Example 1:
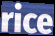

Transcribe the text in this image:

rice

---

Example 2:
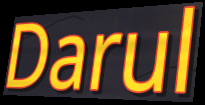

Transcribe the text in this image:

Darul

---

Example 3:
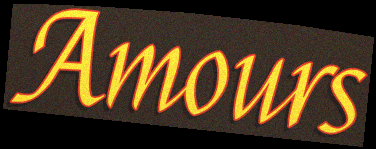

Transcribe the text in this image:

Amours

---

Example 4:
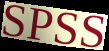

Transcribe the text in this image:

SPSS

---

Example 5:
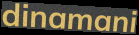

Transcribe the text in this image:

dinamani